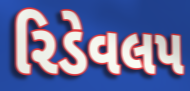
રિડેવલપ